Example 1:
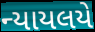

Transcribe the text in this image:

ન્યાયલયે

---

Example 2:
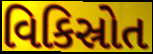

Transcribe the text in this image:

વિકિસ્રોત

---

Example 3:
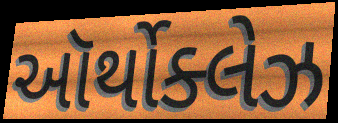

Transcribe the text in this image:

ઑર્થોક્લેઝ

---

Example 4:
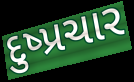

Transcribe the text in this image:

દુષ્પ્રચાર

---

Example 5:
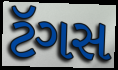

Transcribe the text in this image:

ટૅગસ